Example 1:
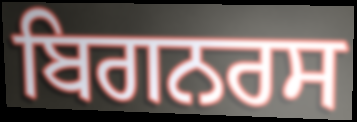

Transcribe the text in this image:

ਬਿਗਨਰਸ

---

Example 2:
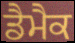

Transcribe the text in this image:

ਡੈਮੈਕ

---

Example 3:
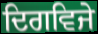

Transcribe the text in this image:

ਦਿਗਵਿਜੇ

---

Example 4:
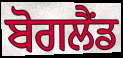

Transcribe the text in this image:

ਬੋਗਲੈਂਡ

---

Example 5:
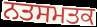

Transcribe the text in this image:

ਨਤਸਮਤਕ